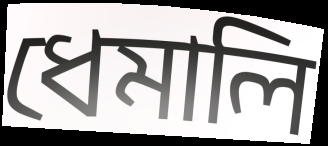
ধেমালি